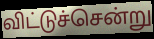
விட்டுச்சென்று